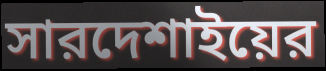
সারদেশাইয়ের